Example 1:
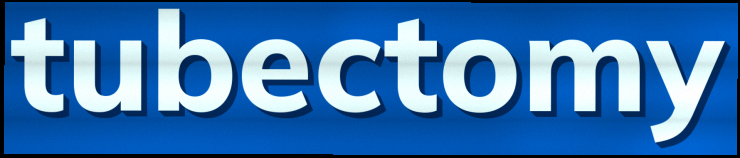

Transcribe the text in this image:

tubectomy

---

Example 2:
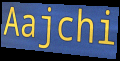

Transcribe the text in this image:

Aajchi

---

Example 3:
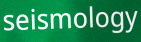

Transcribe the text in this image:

seismology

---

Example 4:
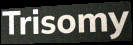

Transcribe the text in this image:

Trisomy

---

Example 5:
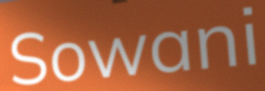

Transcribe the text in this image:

Sowani